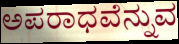
ಅಪರಾಧವೆನ್ನುವ